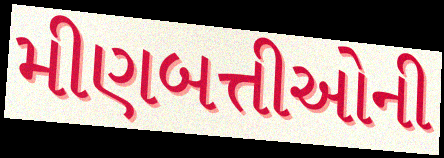
મીણબત્તીઓની